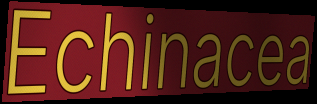
Echinacea